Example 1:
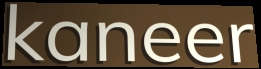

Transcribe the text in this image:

kaneer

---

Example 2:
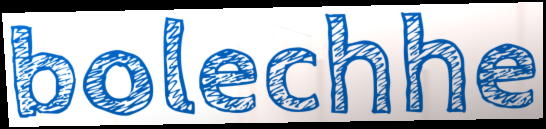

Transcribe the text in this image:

bolechhe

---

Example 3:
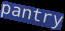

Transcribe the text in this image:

pantry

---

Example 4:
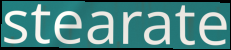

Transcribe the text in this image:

stearate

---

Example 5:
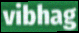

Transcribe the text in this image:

vibhag